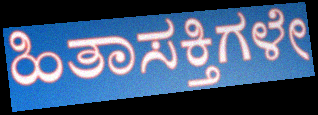
ಹಿತಾಸಕ್ತಿಗಳೇ